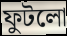
ফুটলো